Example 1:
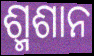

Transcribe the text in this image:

ଶ୍ମଶାନ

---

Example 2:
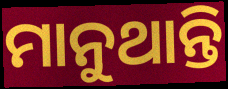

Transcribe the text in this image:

ମାନୁଥାନ୍ତି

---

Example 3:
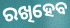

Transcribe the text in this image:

ରଖିହେବ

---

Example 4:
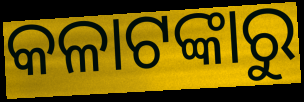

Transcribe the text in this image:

କଳାଟଙ୍କାରୁ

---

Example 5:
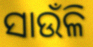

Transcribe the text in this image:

ସାଉଁଳି